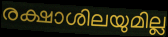
രക്ഷാശിലയുമില്ല